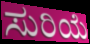
ಸುರಿಯೆ